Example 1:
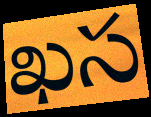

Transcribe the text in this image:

ఖస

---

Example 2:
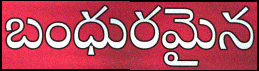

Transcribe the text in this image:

బంధురమైన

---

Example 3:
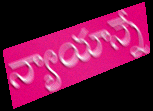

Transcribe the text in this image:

న్యాయాన్నే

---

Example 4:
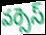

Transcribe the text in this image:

వర్సెస్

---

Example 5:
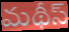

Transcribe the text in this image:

మథీస్